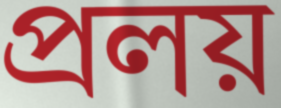
প্রলয়